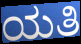
ಯತಿ